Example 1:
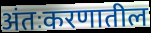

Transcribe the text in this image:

अंतःकरणातील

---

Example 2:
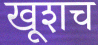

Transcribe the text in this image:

खूशच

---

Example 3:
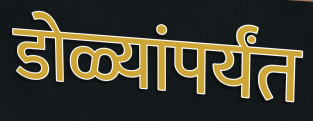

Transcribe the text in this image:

डोळ्यांपर्यंत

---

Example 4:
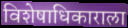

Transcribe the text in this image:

विशेषाधिकाराला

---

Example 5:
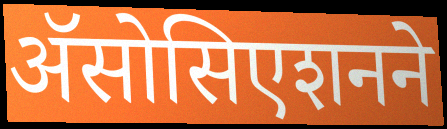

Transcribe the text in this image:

ॲसोसिएशनने